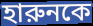
হারুনকে